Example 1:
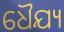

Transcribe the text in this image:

ଧୈଯ୍ୟ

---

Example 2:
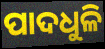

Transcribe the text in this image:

ପାଦଧୁଳି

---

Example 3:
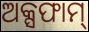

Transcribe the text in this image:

ଅକ୍ସଫାମ୍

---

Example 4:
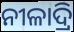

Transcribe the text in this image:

ନୀଳାଦ୍ରି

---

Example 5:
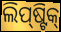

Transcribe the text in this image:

ଲିପ୍‍ଷ୍ଟିକ୍